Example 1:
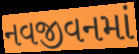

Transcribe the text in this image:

નવજીવનમાં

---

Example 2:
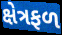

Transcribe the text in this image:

ક્ષેત્રફળ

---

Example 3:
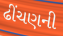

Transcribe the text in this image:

ઢીંચણની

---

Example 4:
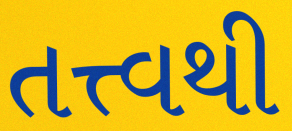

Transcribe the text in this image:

તત્ત્વથી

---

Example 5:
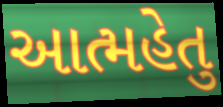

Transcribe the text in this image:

આત્મહેતુ